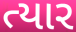
ત્યાર